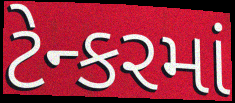
ટેન્કરમાં